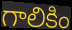
గాలికిం